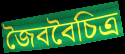
জৈববৈচিত্র